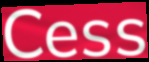
Cess